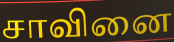
சாவினை